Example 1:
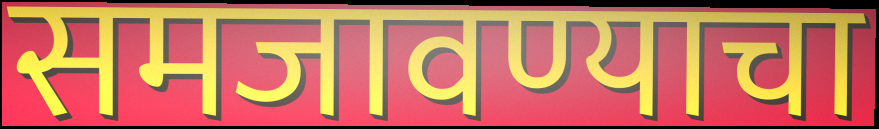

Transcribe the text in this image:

समजावण्याचा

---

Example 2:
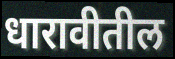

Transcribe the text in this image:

धारावीतील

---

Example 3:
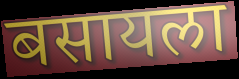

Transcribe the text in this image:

बसायला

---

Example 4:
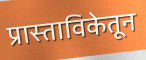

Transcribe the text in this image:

प्रास्ताविकेतून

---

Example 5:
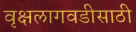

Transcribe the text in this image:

वृक्षलागवडीसाठी